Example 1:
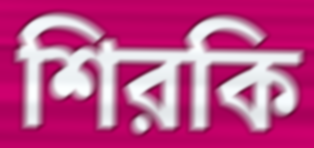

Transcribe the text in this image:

শিরকি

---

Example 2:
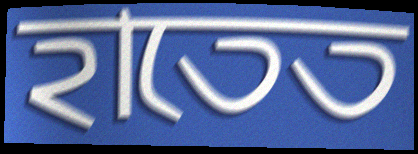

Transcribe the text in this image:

হাতেত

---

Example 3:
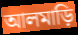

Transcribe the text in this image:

আলমাড়ি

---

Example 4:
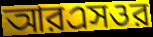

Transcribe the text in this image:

আরএসওর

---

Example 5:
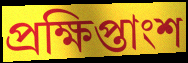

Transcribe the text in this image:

প্রক্ষিপ্তাংশ